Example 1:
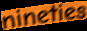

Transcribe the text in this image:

nineties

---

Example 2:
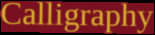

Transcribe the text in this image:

Calligraphy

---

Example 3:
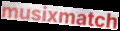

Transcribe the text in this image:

musixmatch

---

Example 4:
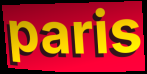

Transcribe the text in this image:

paris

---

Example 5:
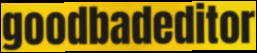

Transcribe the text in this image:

goodbadeditor